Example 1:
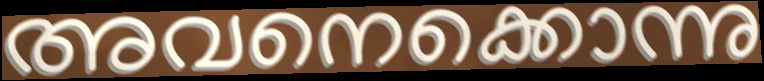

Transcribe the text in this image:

അവനെക്കൊന്നു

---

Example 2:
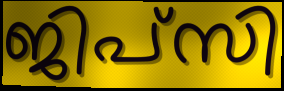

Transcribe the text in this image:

ജിപ്സി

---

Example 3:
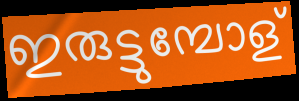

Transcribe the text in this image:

ഇരുട്ടുമ്പോള്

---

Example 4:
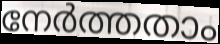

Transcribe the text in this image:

നേർത്തതാം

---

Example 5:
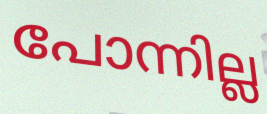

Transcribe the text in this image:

പോന്നില്ല